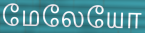
மேலேயோ